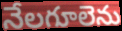
నేలగూలెను